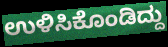
ಉಳಿಸಿಕೊಂಡಿದ್ದು